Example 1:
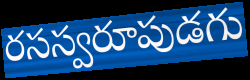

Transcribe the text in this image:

రసస్వరూపుడగు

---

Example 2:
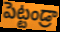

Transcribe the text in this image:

పెట్టండ్రా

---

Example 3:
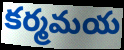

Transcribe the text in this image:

కర్మమయ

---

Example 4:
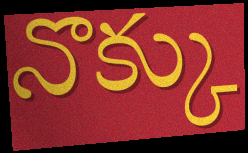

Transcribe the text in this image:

నొక్కు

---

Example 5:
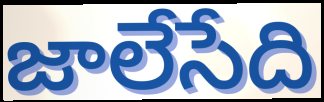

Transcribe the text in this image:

జాలేసేది